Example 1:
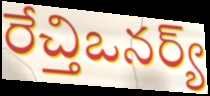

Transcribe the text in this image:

రేచ్తిఒనర్య్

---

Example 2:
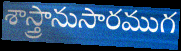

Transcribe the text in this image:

శాస్త్రానుసారముగ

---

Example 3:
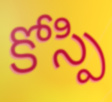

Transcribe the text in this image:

కోస్పి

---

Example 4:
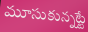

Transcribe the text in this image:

మూసుకున్నట్టే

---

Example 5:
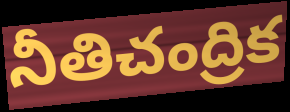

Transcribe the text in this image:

నీతిచంద్రిక